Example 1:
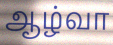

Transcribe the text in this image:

ஆழ்வா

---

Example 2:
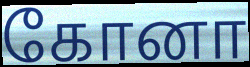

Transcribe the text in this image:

கோனா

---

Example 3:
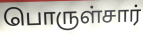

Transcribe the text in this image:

பொருள்சார்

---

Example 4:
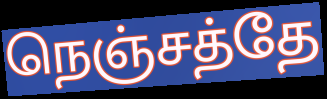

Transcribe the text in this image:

நெஞ்சத்தே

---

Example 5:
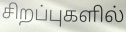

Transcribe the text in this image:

சிறப்புகளில்